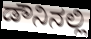
ಡೌನಿನಲ್ಲಿ